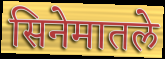
सिनेमातले